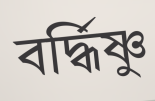
বর্দ্ধিষ্ণু